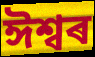
ঈশ্বৰ